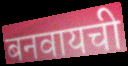
बनवायची